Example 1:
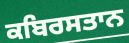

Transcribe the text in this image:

ਕਬਿਰਸਤਾਨ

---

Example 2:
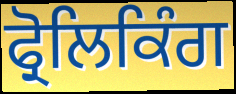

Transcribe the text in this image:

ਫ੍ਰੋਲਿਕਿੰਗ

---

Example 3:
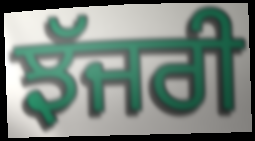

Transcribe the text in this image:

ਝੱਜਰੀ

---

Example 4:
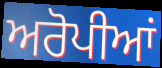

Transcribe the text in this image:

ਅਰੋਪੀਆਂ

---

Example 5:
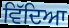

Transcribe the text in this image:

ਵਿੱਦਿਆ